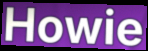
Howie